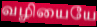
வழியையே